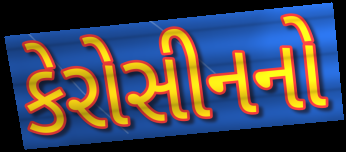
કેરોસીનનો